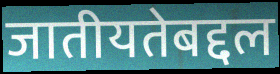
जातीयतेबद्दल